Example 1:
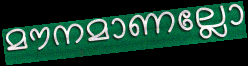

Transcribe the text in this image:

മൗനമാണല്ലോ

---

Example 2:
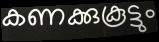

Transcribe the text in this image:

കണക്കുകൂട്ടും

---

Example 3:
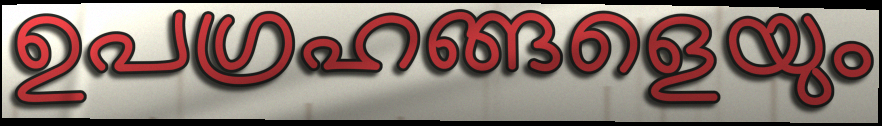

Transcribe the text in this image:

ഉപഗ്രഹങ്ങളെയും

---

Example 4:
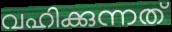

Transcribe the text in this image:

വഹിക്കുന്നത്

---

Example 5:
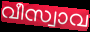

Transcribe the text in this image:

വീസ്വാവ